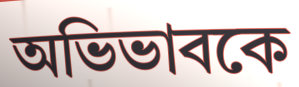
অভিভাবকে